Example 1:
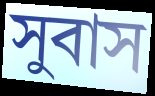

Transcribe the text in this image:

সুবাস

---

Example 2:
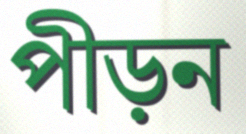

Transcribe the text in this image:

পীড়ন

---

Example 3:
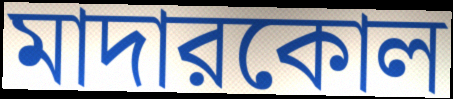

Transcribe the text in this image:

মাদারকোল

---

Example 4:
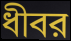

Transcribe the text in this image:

ধীবর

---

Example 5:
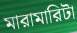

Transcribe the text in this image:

মারামারিটা